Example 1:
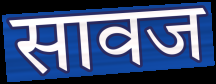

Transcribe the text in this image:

सावज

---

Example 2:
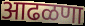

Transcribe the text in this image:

आढळणा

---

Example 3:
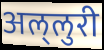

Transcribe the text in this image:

अल्लुरी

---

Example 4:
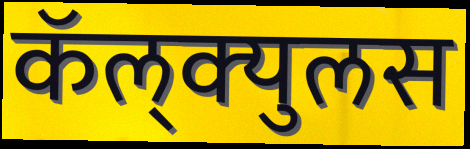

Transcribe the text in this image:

कॅल्क्युलस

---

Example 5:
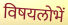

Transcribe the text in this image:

विषयलोभें